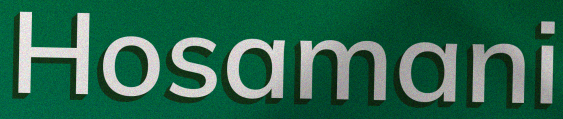
Hosamani